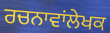
ਰਚਨਾਵਾਂਲੇਖਕ